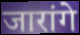
जारांगे